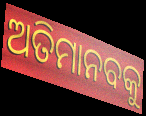
ଅତିମାନବକୁ